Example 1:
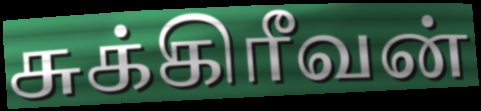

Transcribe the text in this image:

சுக்கிரீவன்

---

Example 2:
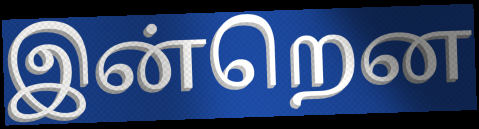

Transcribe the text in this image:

இன்றென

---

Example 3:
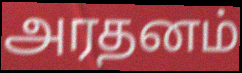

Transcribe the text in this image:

அரதனம்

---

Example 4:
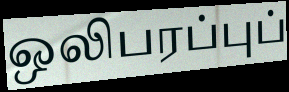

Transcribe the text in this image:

ஒலிபரப்புப்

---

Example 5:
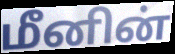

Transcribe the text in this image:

மீனின்